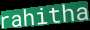
rahitha